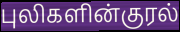
புலிகளின்குரல்